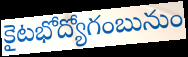
కైటభోద్యోగంబునుం